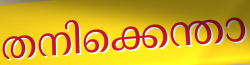
തനിക്കെന്താ